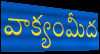
వాక్యంమీద